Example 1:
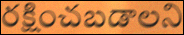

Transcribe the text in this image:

రక్షించబడాలని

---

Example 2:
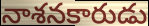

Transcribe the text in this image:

నాశనకారుడు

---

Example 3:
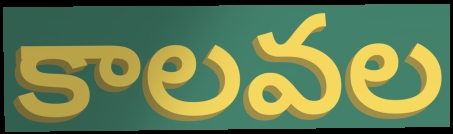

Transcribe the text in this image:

కాలవల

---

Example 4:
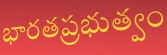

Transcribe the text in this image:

భారతప్రభుత్వం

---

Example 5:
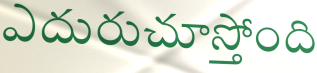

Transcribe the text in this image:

ఎదురుచూస్తోంది